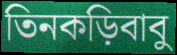
তিনকড়িবাবু